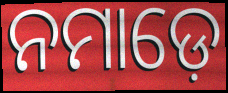
ନମାଡ଼େ